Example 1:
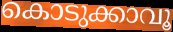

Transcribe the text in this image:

കൊടുക്കാവൂ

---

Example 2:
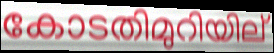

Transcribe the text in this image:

കോടതിമുറിയില്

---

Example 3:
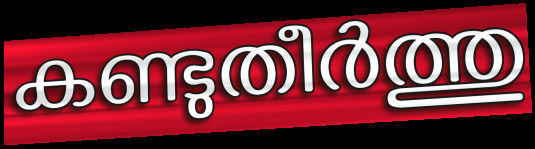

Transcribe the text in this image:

കണ്ടുതീർത്തു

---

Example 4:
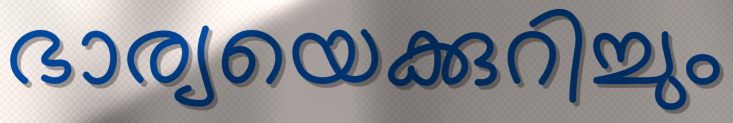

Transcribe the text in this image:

ഭാര്യയെക്കുറിച്ചും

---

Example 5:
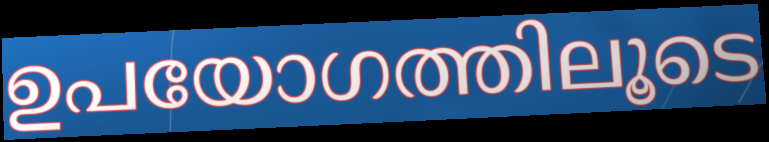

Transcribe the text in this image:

ഉപയോഗത്തിലൂടെ